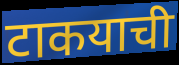
टाकयाची